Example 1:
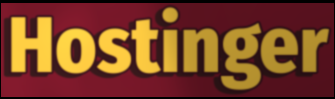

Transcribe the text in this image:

Hostinger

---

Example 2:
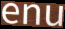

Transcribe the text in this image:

enu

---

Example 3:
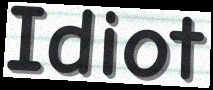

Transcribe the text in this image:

Idiot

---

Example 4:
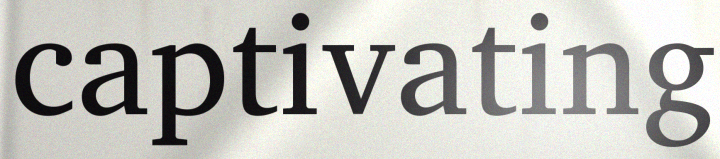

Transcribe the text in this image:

captivating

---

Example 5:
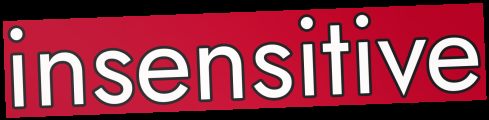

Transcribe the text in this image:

insensitive